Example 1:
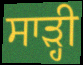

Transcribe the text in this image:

ਸਾੜ੍ਹੀ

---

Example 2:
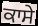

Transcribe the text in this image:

ਕਾਸੇ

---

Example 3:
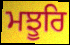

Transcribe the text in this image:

ਮਝੂਰਿ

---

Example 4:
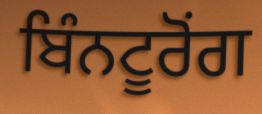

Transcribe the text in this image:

ਬਿੰਨਟੂਰੋਂਗ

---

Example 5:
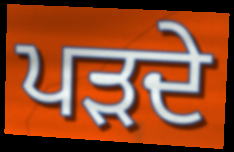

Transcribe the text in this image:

ਪੜਦੇ